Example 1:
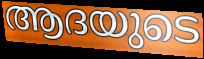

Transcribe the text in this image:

ആദയുടെ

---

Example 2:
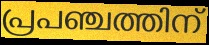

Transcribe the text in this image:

പ്രപഞ്ചത്തിന്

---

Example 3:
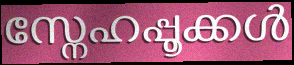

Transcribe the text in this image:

സ്നേഹപ്പൂക്കൾ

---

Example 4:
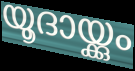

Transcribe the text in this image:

യൂദായ്ക്കും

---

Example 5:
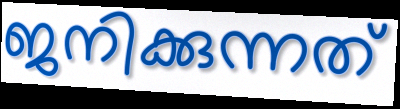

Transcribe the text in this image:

ജനിക്കുന്നത്